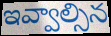
ఇవ్వాల్సిన